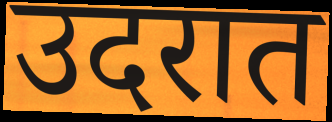
उदरात